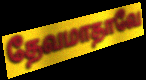
தேவமாதாவே